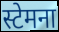
स्टेमना